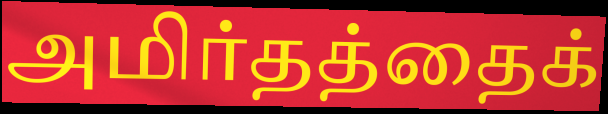
அமிர்தத்தைக்